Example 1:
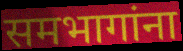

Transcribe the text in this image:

समभागांना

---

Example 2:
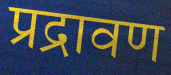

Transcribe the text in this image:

प्रद्रावण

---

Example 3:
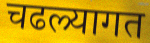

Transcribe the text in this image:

चढल्यागत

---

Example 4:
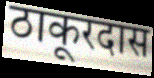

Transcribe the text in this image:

ठाकूरदास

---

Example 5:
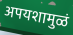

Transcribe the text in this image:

अपयशामुळं